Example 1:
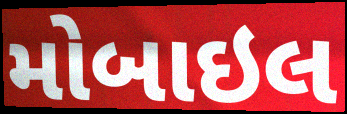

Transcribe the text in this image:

મોબાઇલ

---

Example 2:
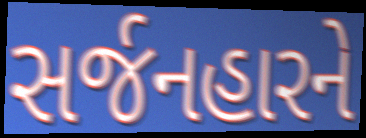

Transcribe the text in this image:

સર્જનહારને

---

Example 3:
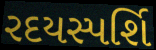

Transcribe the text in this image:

રદયસ્પર્શિ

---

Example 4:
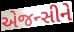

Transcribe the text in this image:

એજન્સીને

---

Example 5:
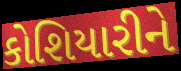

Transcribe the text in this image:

કોશિયારીને